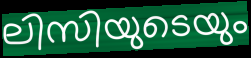
ലിസിയുടെയും